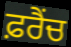
ਫ਼ਰੈਂਚ